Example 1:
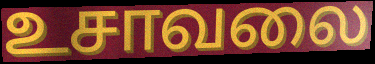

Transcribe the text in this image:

உசாவலை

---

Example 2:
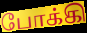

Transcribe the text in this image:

போக்கி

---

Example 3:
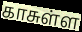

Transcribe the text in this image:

காசுள்ள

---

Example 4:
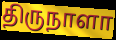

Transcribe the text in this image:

திருநாளா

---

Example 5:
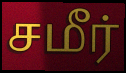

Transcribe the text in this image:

சமீர்